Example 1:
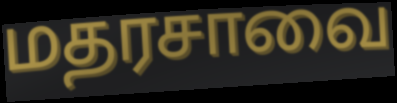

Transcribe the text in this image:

மதரசாவை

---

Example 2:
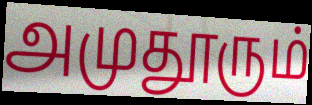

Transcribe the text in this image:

அமுதூரும்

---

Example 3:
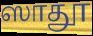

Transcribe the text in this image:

ஸாதூ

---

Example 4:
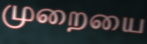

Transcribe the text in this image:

முறையை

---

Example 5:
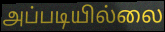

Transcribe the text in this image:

அப்படியில்லை